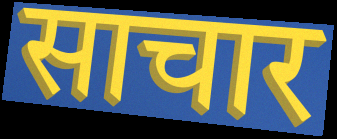
साचार